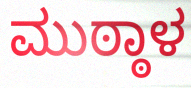
ಮುಠ್ಠಾಳ